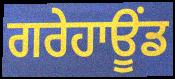
ਗਰੇਹਾਊਂਡ